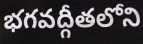
భగవద్గీతలోని